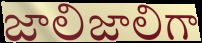
జాలిజాలిగా